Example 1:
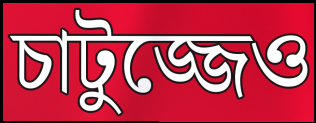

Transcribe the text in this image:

চাটুজ্জেও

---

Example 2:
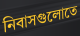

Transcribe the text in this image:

নিবাসগুলোতে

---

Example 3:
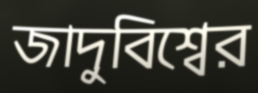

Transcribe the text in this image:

জাদুবিশ্বের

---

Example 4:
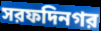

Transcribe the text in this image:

সরফদিনগর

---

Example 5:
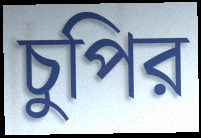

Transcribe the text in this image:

চুপির